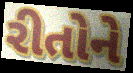
રીતોને